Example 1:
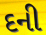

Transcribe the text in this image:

દની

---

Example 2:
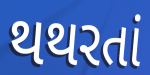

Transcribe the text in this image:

થથરતાં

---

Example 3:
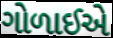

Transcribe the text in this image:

ગોળાઈએ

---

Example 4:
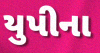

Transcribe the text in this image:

યુપીના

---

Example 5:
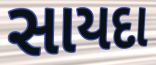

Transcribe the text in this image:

સાયદા